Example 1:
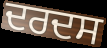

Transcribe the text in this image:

ਦਰਦਸ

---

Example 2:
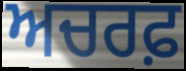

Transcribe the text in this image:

ਅਚਰਫ਼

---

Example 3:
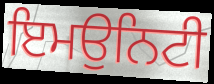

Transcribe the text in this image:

ਇਮਉਨਿਟੀ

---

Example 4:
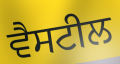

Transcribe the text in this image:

ਵੈਸਟੀਲ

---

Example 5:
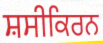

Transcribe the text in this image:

ਸ਼ਸੀਕਿਰਨ